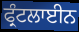
ਫ੍ਰੰਟਲਾਈਨ